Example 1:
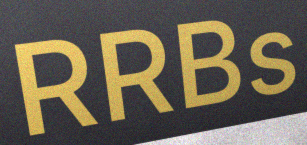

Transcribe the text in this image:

RRBs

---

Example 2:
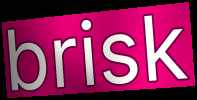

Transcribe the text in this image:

brisk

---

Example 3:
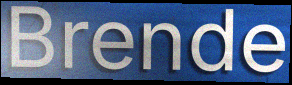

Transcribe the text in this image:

Brende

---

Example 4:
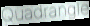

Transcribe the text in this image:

Quadrangle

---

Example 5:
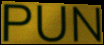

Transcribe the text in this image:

PUN